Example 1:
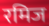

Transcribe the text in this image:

रमिज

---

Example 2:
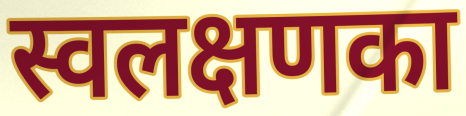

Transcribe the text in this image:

स्वलक्षणका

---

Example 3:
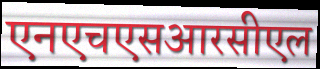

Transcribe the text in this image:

एनएचएसआरसीएल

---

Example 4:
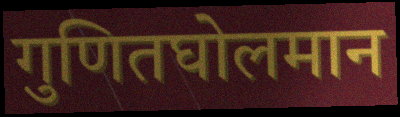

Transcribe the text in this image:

गुणितघोलमान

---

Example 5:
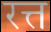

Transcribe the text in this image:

रत्त